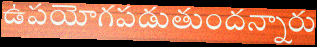
ఉపయోగపడుతుందన్నారు